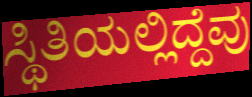
ಸ್ಥಿತಿಯಲ್ಲಿದ್ದೆವು